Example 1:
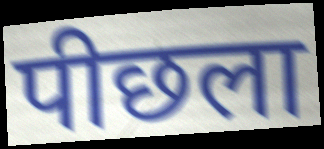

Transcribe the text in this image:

पीछला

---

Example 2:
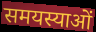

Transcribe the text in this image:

समयस्याओं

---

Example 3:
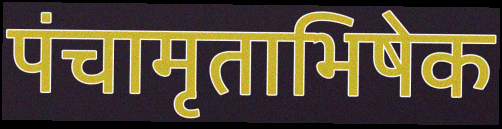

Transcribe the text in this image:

पंचामृताभिषेक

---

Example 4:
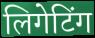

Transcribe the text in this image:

लिगेटिंग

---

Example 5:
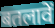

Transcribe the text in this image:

बतलावें